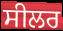
ਸੀਲਰ